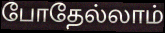
போதேல்லாம்